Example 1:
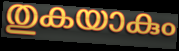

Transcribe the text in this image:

തുകയാകും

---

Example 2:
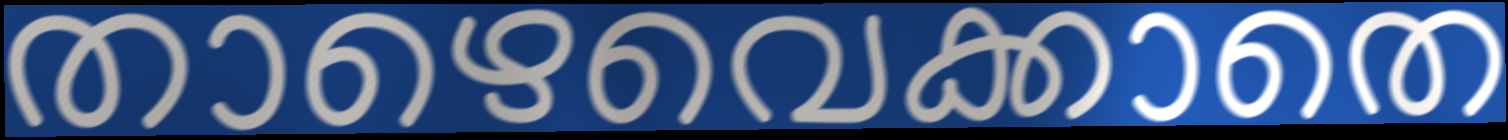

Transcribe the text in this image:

താഴെവെക്കാതെ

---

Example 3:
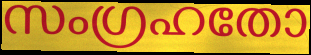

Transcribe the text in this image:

സംഗ്രഹതോ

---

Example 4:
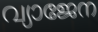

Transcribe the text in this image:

വ്യാജേന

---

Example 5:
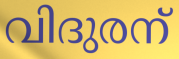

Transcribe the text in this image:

വിദുരന്